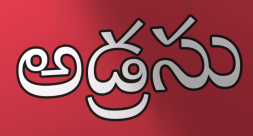
అడ్రసు